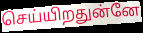
செய்யிறதுன்னே